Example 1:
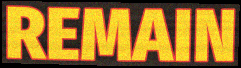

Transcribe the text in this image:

REMAIN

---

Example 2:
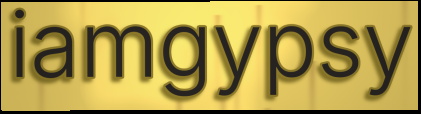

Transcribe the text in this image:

iamgypsy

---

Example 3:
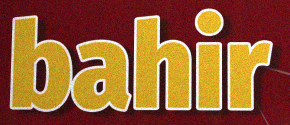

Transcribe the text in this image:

bahir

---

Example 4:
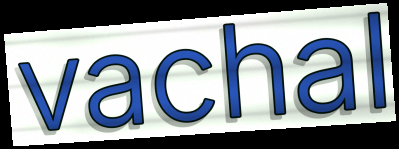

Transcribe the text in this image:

vachal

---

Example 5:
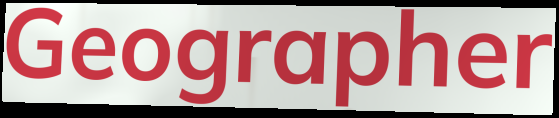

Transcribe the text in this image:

Geographer